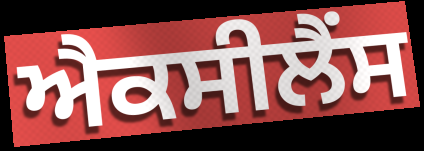
ਐਕਸੀਲੈਂਸ